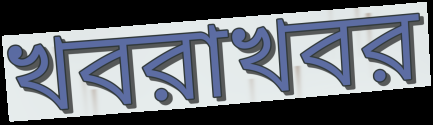
খবরাখবর